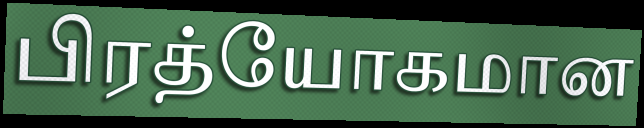
பிரத்யோகமான